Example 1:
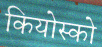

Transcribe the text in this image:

कियोस्को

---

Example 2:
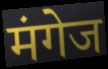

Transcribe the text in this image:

मंगेज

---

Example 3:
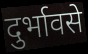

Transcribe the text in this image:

दुर्भावसे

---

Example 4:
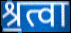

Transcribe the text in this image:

श्र॒त्वा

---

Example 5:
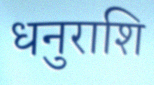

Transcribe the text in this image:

धनुराशि